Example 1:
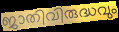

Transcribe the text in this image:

ജാതിവിരുദ്ധവും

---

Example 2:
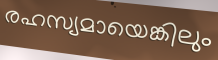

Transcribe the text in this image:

രഹസ്യമായെങ്കിലും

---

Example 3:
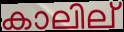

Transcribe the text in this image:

കാലില്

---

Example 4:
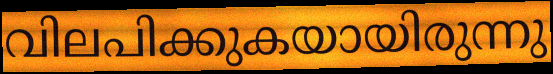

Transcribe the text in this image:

വിലപിക്കുകയായിരുന്നു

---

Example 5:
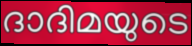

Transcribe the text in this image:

ദാദിമയുടെ